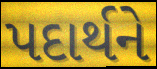
પદાર્થને